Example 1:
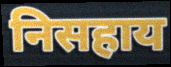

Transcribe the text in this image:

निसहाय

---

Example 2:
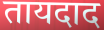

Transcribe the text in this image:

तायदाद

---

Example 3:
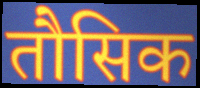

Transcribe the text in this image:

तौसिक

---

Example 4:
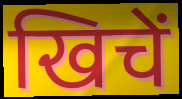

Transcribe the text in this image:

खिचें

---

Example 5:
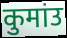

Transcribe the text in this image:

कुमांउ